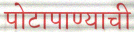
पोटापाण्याची